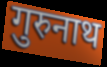
गुरुनाथ